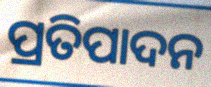
ପ୍ରତିପାଦନ